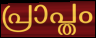
പ്രാപ്തം